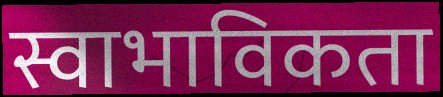
स्वाभाविकता